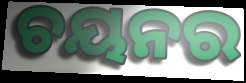
ଚୟନର